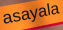
asayala